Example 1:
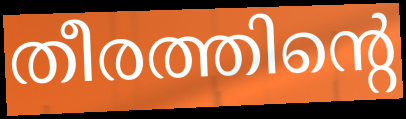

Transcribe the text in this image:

തീരത്തിന്റെ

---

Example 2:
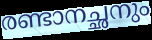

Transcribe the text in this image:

രണ്ടാനച്ഛനും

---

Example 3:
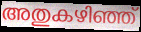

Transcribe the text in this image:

അതുകഴിഞ്ഞ്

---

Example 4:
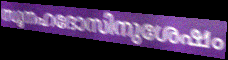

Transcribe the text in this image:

സൂനഹദോസിനുശേഷം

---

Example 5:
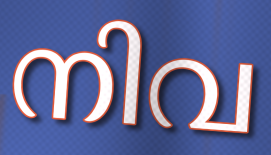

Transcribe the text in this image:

നിവ